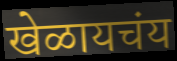
खेळायचंय